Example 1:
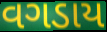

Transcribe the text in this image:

વગડાય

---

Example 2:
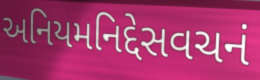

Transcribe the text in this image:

અનિયમનિદ્દેસવચનં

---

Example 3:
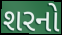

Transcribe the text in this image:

શરનો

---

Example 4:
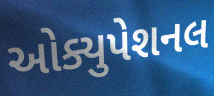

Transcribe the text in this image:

ઓક્યુપેશનલ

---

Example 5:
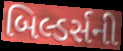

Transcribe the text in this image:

બિલ્ડર્સની